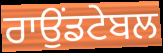
ਰਾਉਂਡਟੇਬਲ